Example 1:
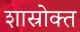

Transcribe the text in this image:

शास्रोक्त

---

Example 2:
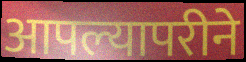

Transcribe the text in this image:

आपल्यापरीने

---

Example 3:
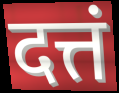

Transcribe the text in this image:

दत्तं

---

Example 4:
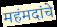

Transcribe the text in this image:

महंमदांचे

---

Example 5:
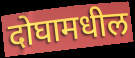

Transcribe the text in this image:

दोघामधील